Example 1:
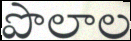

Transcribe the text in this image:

పొలాల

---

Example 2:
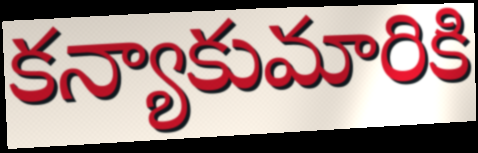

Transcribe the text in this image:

కన్యాకుమారికి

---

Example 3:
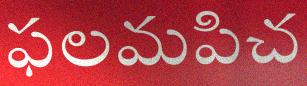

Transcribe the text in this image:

ఫలమపిచ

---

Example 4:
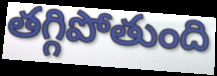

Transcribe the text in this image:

తగ్గిపోతుంది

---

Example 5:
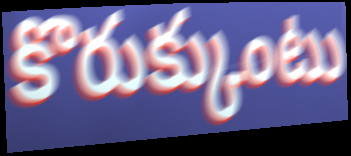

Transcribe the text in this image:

కొరుక్కుంటు